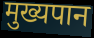
मुख्यपान